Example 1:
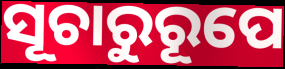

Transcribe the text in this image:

ସୂଚାରୁରୂପେ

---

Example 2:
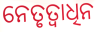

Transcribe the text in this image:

ନେତୃତ୍ୱାଧିନ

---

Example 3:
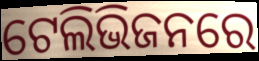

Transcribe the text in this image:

ଟେଲିଭିଜନରେ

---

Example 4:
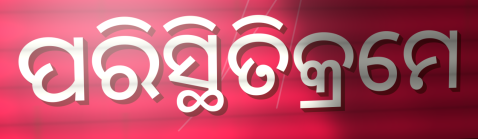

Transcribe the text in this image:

ପରିସ୍ଥିତିକ୍ରମେ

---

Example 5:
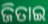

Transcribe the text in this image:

ଜିତାଇ